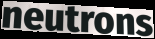
neutrons